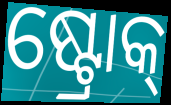
ଷ୍ଟ୍ରୋକ୍